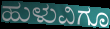
ಹುಳುವಿಗೂ